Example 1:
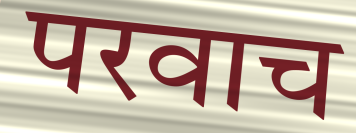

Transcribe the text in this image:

परवाच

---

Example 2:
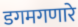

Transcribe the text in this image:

डगमगणारे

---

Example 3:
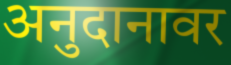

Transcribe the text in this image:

अनुदानावर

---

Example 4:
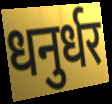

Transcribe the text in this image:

धनुर्धर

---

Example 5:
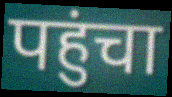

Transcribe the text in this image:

पहुंचा